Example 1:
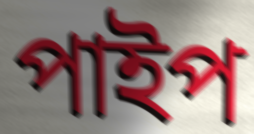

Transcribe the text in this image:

পাইপ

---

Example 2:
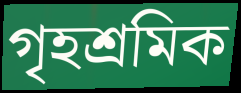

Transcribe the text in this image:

গৃহশ্রমিক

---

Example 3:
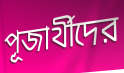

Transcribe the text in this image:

পূজার্থীদের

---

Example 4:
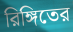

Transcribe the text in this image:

রিঙ্গিতের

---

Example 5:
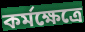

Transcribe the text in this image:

কর্মক্ষেত্রে